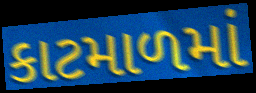
કાટમાળમાં